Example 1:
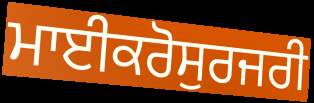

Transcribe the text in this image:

ਮਾਈਕਰੋਸੁਰਜਰੀ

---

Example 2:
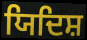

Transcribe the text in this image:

ਯਿਦਿਸ਼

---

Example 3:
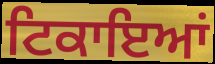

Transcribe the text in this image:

ਟਿਕਾਇਆਂ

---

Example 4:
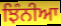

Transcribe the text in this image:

ਝਿੰਨੀਆ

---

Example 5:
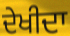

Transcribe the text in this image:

ਦੇਖੀਦਾ